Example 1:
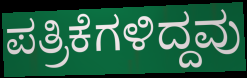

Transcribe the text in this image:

ಪತ್ರಿಕೆಗಳಿದ್ದವು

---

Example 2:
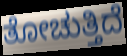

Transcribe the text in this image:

ತೋಚುತ್ತಿದೆ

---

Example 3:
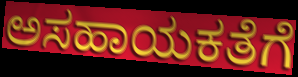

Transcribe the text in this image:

ಅಸಹಾಯಕತೆಗೆ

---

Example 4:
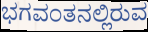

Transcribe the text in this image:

ಭಗವಂತನಲ್ಲಿರುವ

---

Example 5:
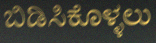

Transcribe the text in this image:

ಬಿಡಿಸಿಕೊಳ್ಳಲು